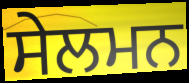
ਸੇਲਮਨ